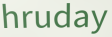
hruday